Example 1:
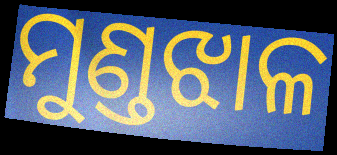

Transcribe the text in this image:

ମୁଣ୍ଡଝାଳ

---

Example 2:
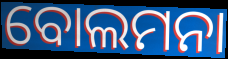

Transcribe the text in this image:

ବୋଲମନା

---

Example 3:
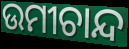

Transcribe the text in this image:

ଉମୀଚାନ୍ଦ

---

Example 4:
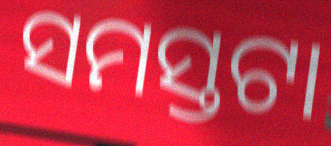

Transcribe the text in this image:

ସମସ୍ତଟା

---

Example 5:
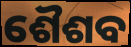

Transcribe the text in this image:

ଶୈଶବ